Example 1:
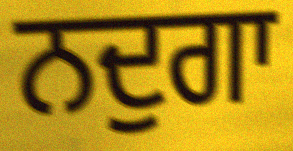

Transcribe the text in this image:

ਨਦੁਗਾ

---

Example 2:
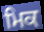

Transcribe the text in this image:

ਮਿਕ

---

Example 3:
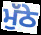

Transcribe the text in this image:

ਮੁੱਠੇ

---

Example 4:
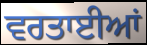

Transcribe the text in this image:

ਵਰਤਾਈਆਂ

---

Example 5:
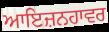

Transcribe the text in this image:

ਆਇਜ਼ਨਹਾਵਰ